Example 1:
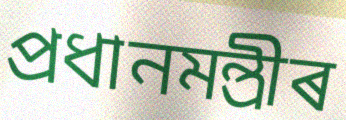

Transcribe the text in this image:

প্ৰধানমন্ত্ৰীৰ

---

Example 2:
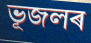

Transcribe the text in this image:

ভূজলৰ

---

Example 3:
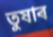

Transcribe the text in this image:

তুষাৰ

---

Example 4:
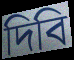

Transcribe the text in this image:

দিবি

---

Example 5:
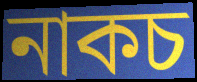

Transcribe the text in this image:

নাকচ